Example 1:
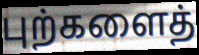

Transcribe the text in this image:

புற்களைத்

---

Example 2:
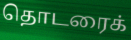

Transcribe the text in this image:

தொடரைக்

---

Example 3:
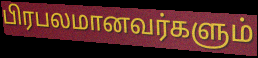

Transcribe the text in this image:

பிரபலமானவர்களும்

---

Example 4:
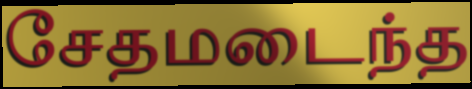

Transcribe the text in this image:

சேதமடைந்த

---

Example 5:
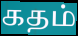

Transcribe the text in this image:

கதம்